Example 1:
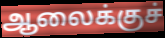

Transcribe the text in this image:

ஆலைக்குச்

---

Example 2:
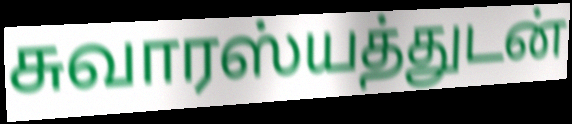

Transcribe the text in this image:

சுவாரஸ்யத்துடன்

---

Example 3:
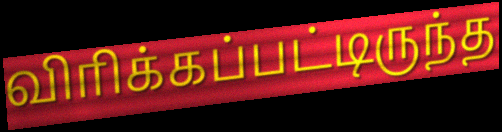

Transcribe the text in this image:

விரிக்கப்பட்டிருந்த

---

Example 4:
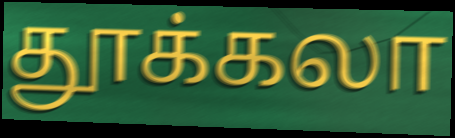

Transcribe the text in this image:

தூக்கலா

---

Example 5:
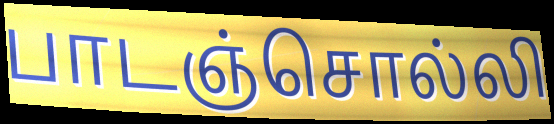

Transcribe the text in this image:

பாடஞ்சொல்லி